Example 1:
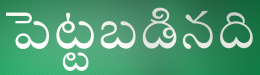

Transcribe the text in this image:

పెట్టబడినది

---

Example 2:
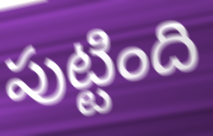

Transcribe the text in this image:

పుట్టింది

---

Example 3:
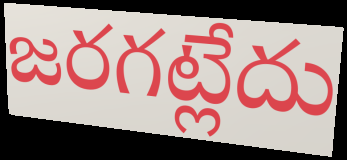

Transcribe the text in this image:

జరగట్లేదు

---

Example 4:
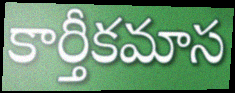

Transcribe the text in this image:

కార్తీకమాస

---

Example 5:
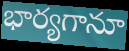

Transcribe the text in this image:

భార్యగానూ